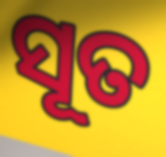
ସୂତ